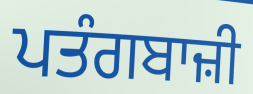
ਪਤੰਗਬਾਜ਼ੀ